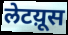
लेटय़ूस